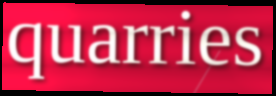
quarries